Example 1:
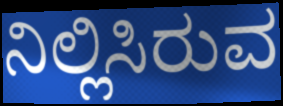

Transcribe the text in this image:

ನಿಲ್ಲಿಸಿರುವ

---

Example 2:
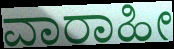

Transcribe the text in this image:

ವಾರಾಹೀ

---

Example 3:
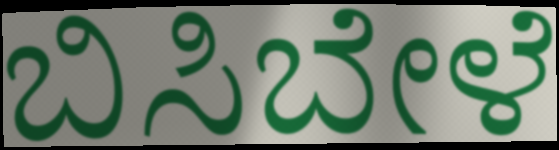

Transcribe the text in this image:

ಬಿಸಿಬೇಳೆ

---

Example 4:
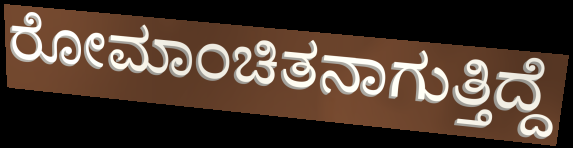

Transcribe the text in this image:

ರೋಮಾಂಚಿತನಾಗುತ್ತಿದ್ದೆ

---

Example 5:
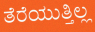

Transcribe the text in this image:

ತೆರೆಯುತ್ತಿಲ್ಲ